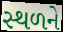
સ્‍થળને